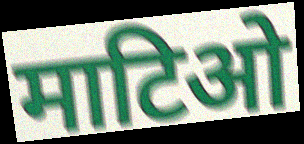
माटिओ